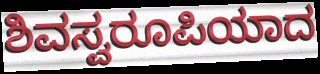
ಶಿವಸ್ವರೂಪಿಯಾದ